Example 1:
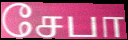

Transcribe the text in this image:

சேபா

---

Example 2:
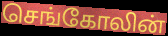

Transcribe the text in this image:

செங்கோலின்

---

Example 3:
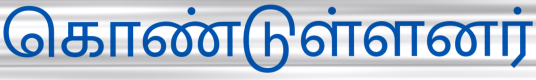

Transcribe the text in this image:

கொண்டுள்ளனர்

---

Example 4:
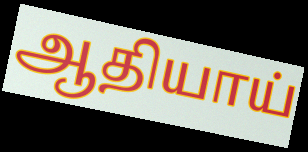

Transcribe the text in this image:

ஆதியாய்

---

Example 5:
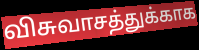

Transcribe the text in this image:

விசுவாசத்துக்காக